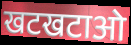
खटखटाओ